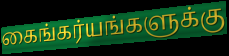
கைங்கர்யங்களுக்கு